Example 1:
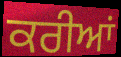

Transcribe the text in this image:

ਕਰੀਆਂ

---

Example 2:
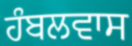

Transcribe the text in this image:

ਹੰਬਲਵਾਸ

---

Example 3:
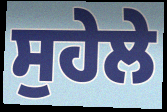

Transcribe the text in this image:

ਸੁਹੇਲੇ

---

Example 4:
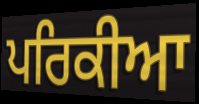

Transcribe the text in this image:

ਪਰਿਕੀਆ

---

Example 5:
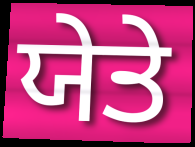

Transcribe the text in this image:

ਯੇਤੇ